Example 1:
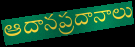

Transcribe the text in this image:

ఆదానప్రదానాలు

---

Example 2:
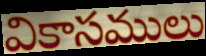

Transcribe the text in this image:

వికాసములు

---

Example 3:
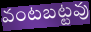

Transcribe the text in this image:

వంటబట్టవు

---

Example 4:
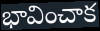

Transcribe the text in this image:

భావించాక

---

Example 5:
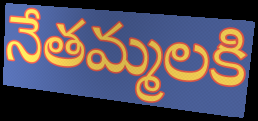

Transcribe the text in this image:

నేతమ్మలకి